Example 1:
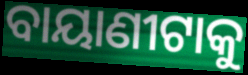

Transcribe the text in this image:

ବାୟାଣୀଟାକୁ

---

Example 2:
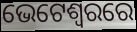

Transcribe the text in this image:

ଭେଟେଶ୍ୱରରେ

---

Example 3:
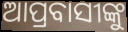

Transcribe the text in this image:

ଆପ୍ରବାସୀଙ୍କୁ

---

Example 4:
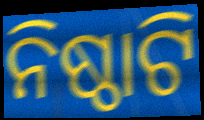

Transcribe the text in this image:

ନିଷ୍ଠାଟି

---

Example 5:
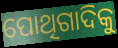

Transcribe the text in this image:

ପୋଥିଗାଦିକୁ